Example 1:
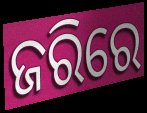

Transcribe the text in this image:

ଜରିରେ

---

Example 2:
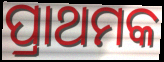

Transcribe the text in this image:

ପ୍ରାଥମକ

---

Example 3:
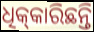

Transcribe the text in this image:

ଧିକ୍‌କାରିଛନ୍ତି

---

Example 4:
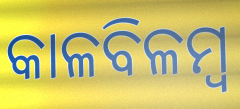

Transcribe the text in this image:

କାଳବିଳମ୍ବ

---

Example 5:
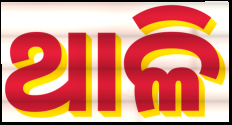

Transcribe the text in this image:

ଥାଳି